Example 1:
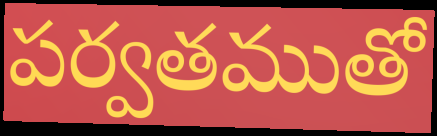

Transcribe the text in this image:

పర్వతముతో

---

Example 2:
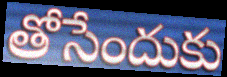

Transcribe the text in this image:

తోసేందుకు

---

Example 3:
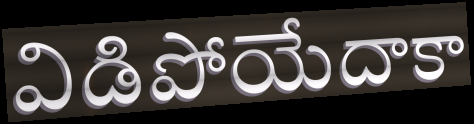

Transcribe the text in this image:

విడిపోయేదాకా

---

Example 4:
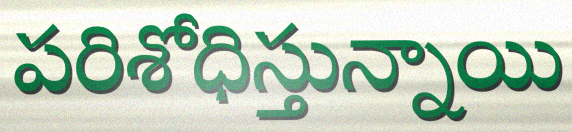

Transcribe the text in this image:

పరిశోధిస్తున్నాయి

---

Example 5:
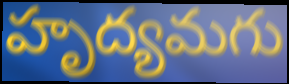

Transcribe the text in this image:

హృద్యమగు